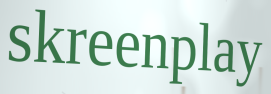
skreenplay